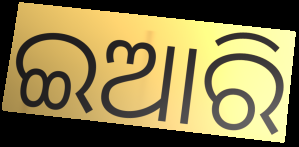
ଇଆରି